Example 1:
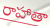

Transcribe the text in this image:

రాహాతా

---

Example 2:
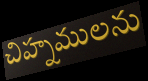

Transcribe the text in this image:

చిహ్నములను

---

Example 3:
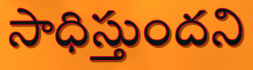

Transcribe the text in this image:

సాధిస్తుందని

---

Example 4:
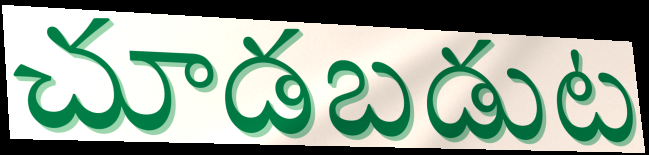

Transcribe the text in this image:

చూడబడుట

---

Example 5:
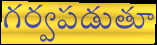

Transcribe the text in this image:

గర్వపడుతూ